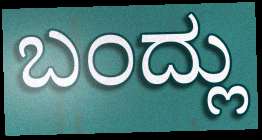
ಬಂದ್ಲು